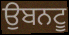
ਉਬਨਟੂ